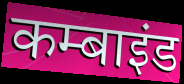
कम्बाइंड